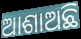
ଆଶାଅଛି